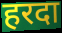
हरदा